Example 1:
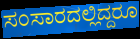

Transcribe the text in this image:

ಸಂಸಾರದಲ್ಲಿದ್ದರೂ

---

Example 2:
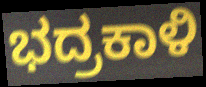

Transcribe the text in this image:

ಭದ್ರಕಾಳಿ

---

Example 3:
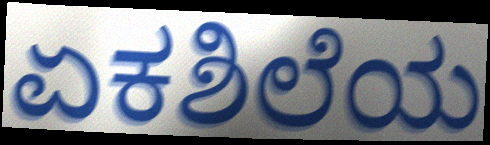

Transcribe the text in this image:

ಏಕಶಿಲೆಯ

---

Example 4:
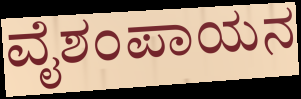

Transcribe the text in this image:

ವೈಶಂಪಾಯನ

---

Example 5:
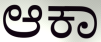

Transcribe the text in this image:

ಆಕಾ